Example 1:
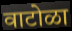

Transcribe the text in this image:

वाटोळा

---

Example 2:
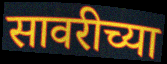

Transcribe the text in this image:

सावरीच्या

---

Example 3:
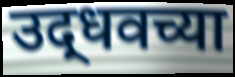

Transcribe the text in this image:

उद्धवच्या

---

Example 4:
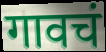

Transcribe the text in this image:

गावचं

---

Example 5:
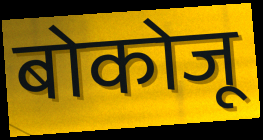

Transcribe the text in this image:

बोकोजू